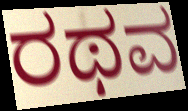
ರಥವ